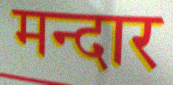
मन्दार